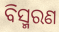
ବିସ୍ମରଣ